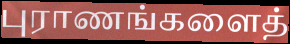
புராணங்களைத்